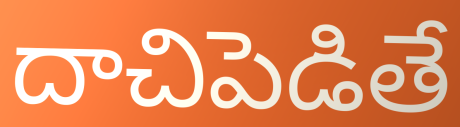
దాచిపెడితే